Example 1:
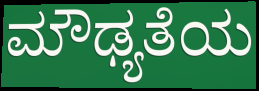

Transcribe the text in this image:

ಮೌಢ್ಯತೆಯ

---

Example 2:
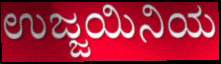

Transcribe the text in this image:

ಉಜ್ಜಯಿನಿಯ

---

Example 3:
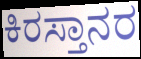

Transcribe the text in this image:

ಕಿರಸ್ತಾನರ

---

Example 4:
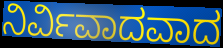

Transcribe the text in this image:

ನಿರ್ವಿವಾದವಾದ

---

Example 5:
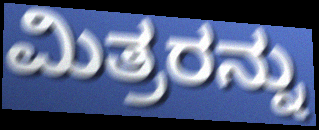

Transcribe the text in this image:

ಮಿತ್ರರನ್ನು